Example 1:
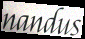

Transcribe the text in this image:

nandus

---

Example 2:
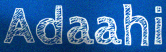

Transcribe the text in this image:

Adaahi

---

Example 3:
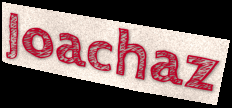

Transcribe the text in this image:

Joachaz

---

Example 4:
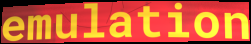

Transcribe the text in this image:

emulation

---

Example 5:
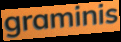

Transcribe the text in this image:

graminis